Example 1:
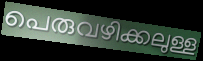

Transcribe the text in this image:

പെരുവഴിക്കലുള്ള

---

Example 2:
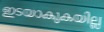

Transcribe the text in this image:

ഇടയാകുകയില്ല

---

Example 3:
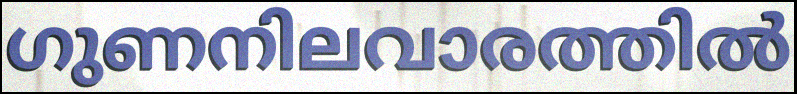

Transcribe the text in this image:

ഗുണനിലവാരത്തിൽ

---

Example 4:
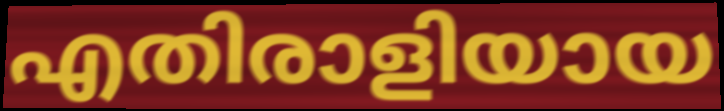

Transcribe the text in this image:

എതിരാളിയായ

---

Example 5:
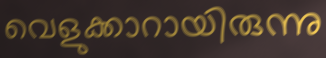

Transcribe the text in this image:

വെളുക്കാറായിരുന്നു